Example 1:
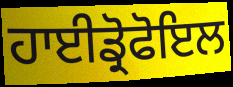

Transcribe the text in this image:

ਹਾਈਡ੍ਰੋਫੋਇਲ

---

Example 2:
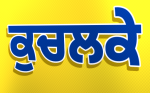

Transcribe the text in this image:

ਕੁਚਲਕੇ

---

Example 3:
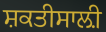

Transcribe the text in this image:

ਸ਼ਕਤੀਸਾਲ਼ੀ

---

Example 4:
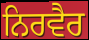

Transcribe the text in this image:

ਨਿਰਵੈਰ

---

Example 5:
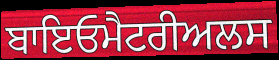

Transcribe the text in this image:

ਬਾਇਓਮੈਟਰੀਅਲਸ